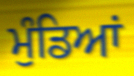
ਮੁੰਡਿਆਂ